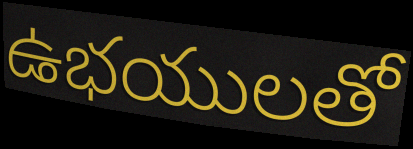
ఉభయులతో